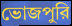
ভোজপুরি